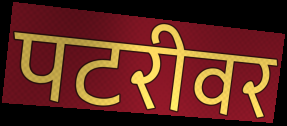
पटरीवर